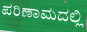
ಪರಿಣಾಮದಲ್ಲಿ